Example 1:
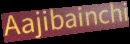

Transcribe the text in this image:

Aajibainchi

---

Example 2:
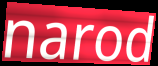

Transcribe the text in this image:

narod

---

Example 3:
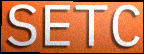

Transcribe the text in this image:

SETC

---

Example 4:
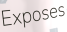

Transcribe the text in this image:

Exposes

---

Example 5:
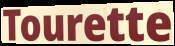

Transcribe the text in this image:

Tourette